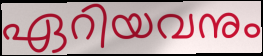
ഏറിയവനും